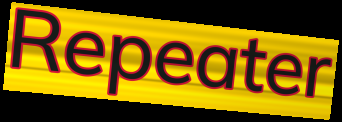
Repeater